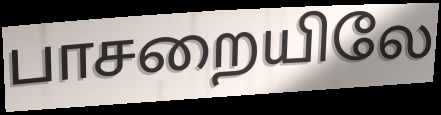
பாசறையிலே